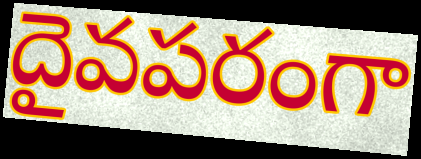
దైవపరంగా